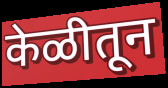
केळीतून